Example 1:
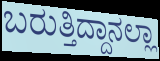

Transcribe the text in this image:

ಬರುತ್ತಿದ್ದಾನಲ್ಲಾ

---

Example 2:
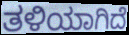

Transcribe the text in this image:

ತಳಿಯಾಗಿದೆ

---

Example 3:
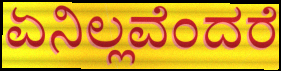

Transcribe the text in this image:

ಏನಿಲ್ಲವೆಂದರೆ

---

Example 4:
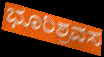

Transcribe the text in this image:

ಭೂರಿಶ್ರವಸ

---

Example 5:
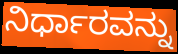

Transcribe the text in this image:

ನಿರ್ಧಾರವನ್ನು